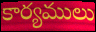
కార్యములు